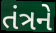
તંત્રને